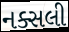
નક્સલી